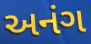
અનંગ